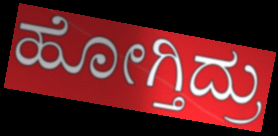
ಹೋಗ್ತಿದ್ರು